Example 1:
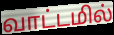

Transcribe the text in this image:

வாட்டமில்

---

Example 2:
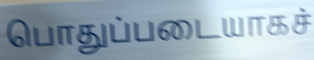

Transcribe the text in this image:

பொதுப்படையாகச்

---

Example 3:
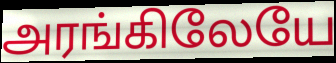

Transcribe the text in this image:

அரங்கிலேயே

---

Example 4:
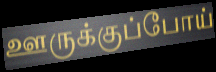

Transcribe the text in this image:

ஊருக்குப்போய்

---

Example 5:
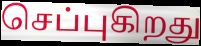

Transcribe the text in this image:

செப்புகிறது